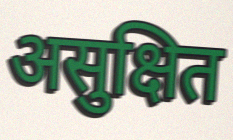
असुक्षित